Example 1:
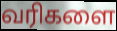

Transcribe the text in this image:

வரிகளை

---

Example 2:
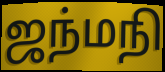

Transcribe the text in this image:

ஜந்மநி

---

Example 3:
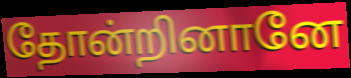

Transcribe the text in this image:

தோன்றினானே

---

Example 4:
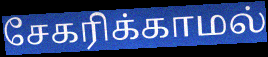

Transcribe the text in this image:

சேகரிக்காமல்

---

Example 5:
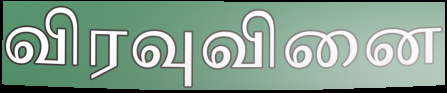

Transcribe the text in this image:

விரவுவினை